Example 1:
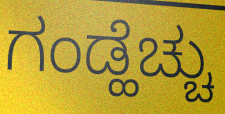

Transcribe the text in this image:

ಗಂಡ್ಹೆಚ್ಚು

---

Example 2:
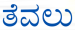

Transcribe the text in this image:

ತೆವಲು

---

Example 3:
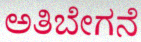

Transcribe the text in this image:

ಅತಿಬೇಗನೆ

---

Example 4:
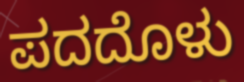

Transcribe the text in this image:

ಪದದೊಳು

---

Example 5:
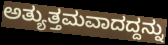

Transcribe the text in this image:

ಅತ್ಯುತ್ತಮವಾದದ್ದನ್ನು